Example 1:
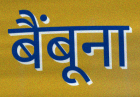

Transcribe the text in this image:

बैंबूना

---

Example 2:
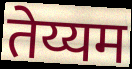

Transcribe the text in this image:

तेय्यम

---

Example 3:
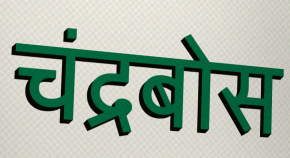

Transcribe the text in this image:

चंद्रबोस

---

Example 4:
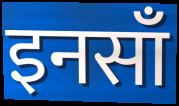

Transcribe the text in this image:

इनसाँ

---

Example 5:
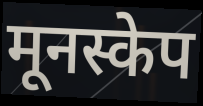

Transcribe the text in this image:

मूनस्केप